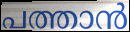
പത്താൻ